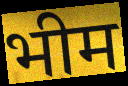
भीम